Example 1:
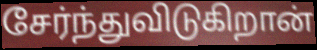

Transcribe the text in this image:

சேர்ந்துவிடுகிறான்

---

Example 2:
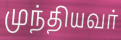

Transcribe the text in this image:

முந்தியவர்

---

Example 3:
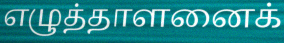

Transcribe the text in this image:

எழுத்தாளனைக்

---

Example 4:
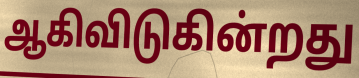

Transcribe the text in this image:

ஆகிவிடுகின்றது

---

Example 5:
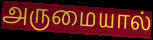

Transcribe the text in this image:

அருமையால்